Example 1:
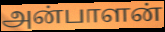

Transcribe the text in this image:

அன்பாளன்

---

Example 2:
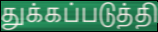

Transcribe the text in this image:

துக்கப்படுத்தி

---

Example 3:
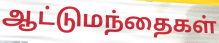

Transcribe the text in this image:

ஆட்டுமந்தைகள்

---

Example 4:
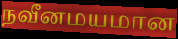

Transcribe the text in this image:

நவீனமயமான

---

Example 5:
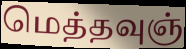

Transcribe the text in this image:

மெத்தவுஞ்